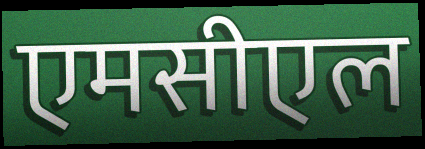
एमसीएल